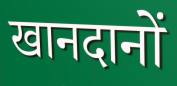
खानदानों